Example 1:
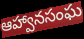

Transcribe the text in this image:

ఆహ్వానసంఘ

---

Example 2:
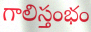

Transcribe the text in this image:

గాలిస్తంభం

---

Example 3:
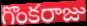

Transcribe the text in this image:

గొంకరాజు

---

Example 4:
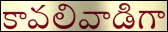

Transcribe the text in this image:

కావలివాడిగా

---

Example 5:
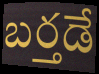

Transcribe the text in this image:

బర్తడే